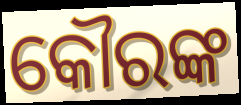
କୌରଙ୍କ